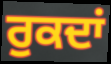
ਰੁਕਦਾਂ